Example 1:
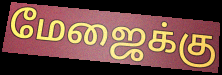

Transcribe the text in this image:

மேஜைக்கு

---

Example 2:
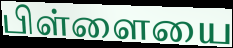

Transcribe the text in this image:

பிள்ளையை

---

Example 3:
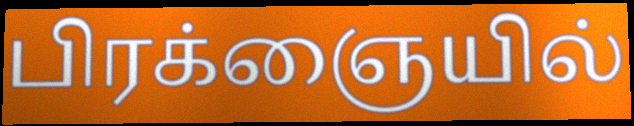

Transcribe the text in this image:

பிரக்ஞையில்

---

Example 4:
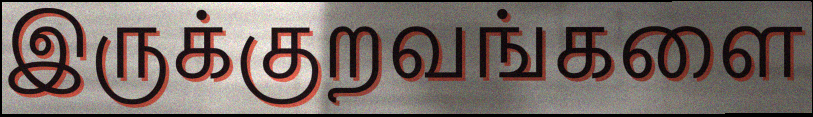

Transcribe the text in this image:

இருக்குறவங்களை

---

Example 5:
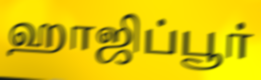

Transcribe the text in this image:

ஹாஜிப்பூர்